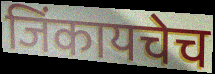
जिंकायचेच